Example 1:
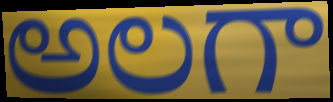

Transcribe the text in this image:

అలగా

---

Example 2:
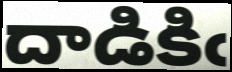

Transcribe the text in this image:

దాడికిఁ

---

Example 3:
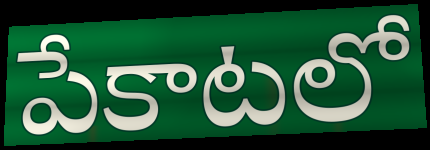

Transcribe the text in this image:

పేకాటలో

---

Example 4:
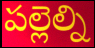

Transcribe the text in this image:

పల్లెల్ని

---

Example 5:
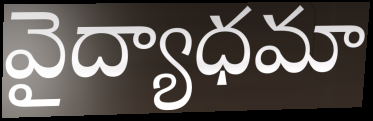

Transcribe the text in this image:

వైద్యాధమా